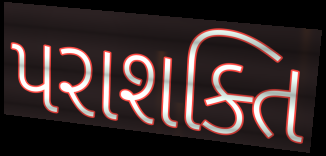
પરાશક્તિ